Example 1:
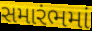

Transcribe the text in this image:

સમારંભમાં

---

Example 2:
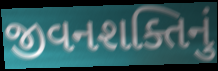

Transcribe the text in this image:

જીવનશક્તિનું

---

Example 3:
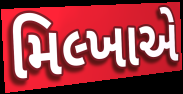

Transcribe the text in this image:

મિલ્ખાએ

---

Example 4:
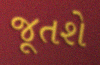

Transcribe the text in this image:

જૂતશે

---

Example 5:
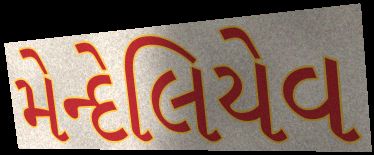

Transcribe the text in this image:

મેન્દેલિયેવ